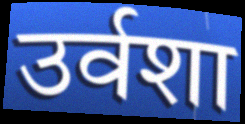
उर्वशा